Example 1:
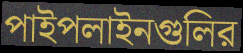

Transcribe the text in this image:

পাইপলাইনগুলির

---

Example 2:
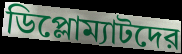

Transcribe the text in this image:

ডিপ্লোম্যাটদের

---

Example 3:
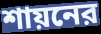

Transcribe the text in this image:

শায়নের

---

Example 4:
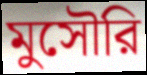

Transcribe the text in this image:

মুসৌরি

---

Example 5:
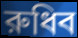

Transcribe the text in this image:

রুধিব